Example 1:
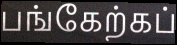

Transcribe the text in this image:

பங்கேற்கப்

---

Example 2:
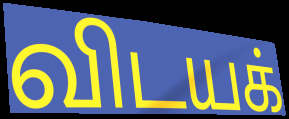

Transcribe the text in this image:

விடயக்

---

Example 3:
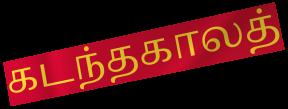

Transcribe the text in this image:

கடந்தகாலத்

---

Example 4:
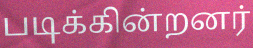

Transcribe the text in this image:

படிக்கின்றனர்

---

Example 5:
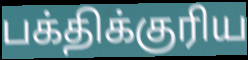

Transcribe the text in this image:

பக்திக்குரிய